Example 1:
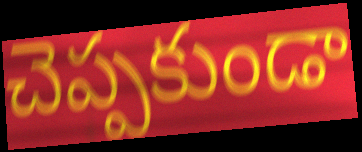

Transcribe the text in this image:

చెప్పకుండా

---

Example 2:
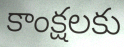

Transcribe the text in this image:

కాంక్షలకు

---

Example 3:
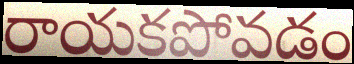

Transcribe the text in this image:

రాయకపోవడం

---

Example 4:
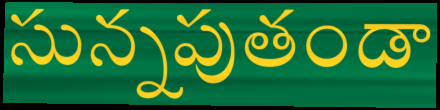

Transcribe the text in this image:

సున్నపుతండా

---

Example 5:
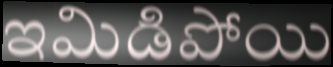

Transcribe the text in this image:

ఇమిడిపోయి